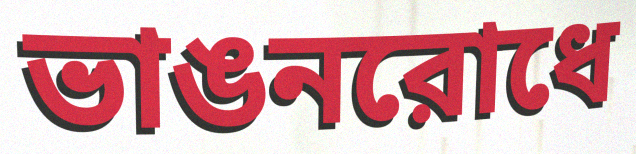
ভাঙনরোধে